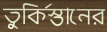
তুর্কিস্তানের